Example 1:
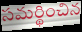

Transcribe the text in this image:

సమర్థించిన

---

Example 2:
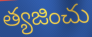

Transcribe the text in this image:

త్యజించు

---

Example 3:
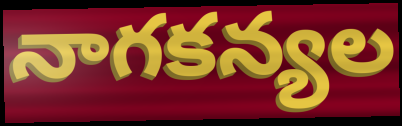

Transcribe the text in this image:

నాగకన్యల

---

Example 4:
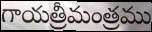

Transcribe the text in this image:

గాయత్రీమంత్రము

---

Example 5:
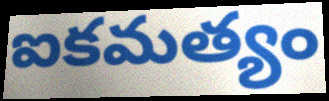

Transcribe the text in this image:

ఐకమత్యం